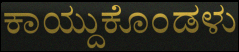
ಕಾಯ್ದುಕೊಂಡಳು